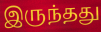
இருந்தது